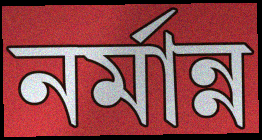
নর্মান্ন